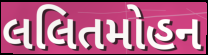
લલિતમોહન